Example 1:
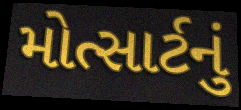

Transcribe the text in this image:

મોત્સાર્ટનું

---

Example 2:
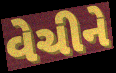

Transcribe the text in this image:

વેચીને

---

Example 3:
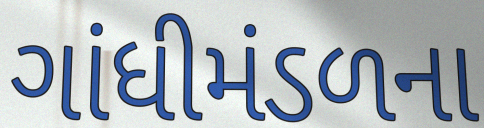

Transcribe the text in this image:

ગાંધીમંડળના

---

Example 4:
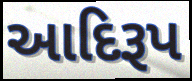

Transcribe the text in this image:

આદિરૂપ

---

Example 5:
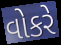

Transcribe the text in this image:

વોકરે